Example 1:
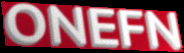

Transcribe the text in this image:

ONEFN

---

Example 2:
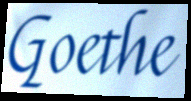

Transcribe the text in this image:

Goethe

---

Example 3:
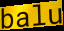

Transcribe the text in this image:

balu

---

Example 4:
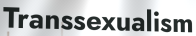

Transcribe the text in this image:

Transsexualism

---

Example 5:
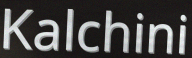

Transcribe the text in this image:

Kalchini